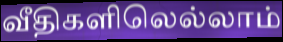
வீதிகளிலெல்லாம்